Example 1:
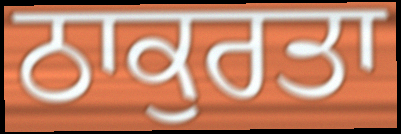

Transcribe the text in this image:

ਠਾਕੁਰਤਾ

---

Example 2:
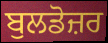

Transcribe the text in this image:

ਬੁਲਡੋਜ਼ਰ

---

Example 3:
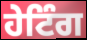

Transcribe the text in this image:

ਹੇਟਿੰਗ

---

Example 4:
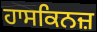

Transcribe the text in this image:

ਹਾਸਕਿਨਜ਼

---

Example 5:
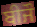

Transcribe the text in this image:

ਬੀਜੌ